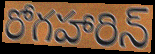
రోగహారిన్